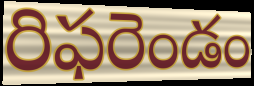
రిఫరెండం